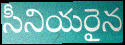
సీనియరైన